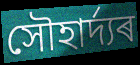
সৌহাৰ্দ্যৰ